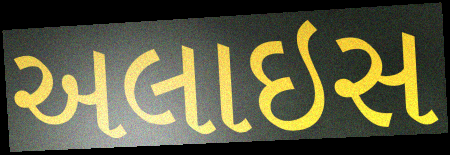
અલાઇસ